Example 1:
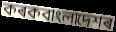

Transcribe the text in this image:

কৰকবাংলাদেশৰ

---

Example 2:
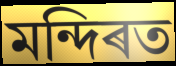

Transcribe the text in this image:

মন্দিৰত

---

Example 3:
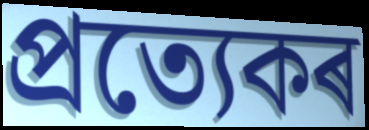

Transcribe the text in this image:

প্ৰত্যেকৰ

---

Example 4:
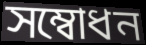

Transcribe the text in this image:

সম্বোধন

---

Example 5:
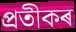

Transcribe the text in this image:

প্ৰতীকৰ